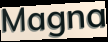
Magna